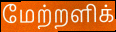
மேற்றளிக்